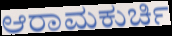
ಆರಾಮಕುರ್ಚಿ